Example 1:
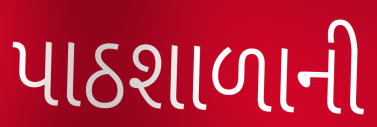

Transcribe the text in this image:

પાઠશાળાની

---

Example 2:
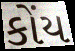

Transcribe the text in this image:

કોંય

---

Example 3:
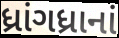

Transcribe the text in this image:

ધ્રાંગધ્રાનાં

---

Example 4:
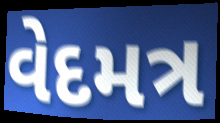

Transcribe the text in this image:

વેદમત્ર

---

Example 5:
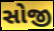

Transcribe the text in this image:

સોજી